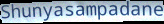
Shunyasampadane